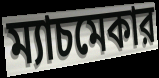
ম্যাচমেকার